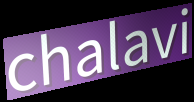
chalavi